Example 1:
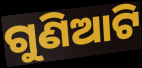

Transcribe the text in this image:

ଗୁଣିଆଟି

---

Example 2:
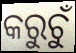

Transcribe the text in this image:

କରୁଚୁଁ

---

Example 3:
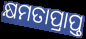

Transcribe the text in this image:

କ୍ଷମତାପ୍ରାପ୍ତ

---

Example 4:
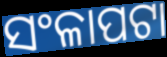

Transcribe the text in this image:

ସଂଳାପଟା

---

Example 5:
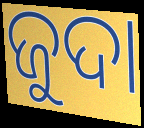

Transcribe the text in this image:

ଜୁଦା